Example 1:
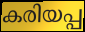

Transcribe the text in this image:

കരിയപ്പ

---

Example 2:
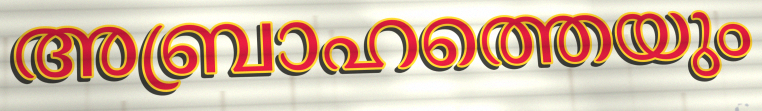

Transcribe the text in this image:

അബ്രാഹത്തെയും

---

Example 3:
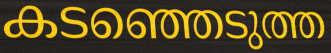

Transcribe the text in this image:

കടഞ്ഞെടുത്ത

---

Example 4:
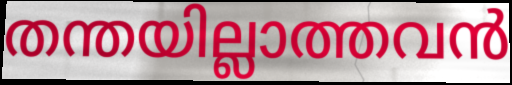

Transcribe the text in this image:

തന്തയില്ലാത്തവൻ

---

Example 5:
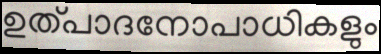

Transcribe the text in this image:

ഉത്പാദനോപാധികളും